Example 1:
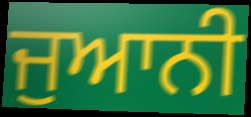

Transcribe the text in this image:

ਜੁਆਨੀ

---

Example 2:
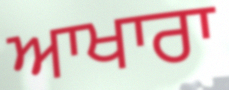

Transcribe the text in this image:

ਆਖਾਰਾ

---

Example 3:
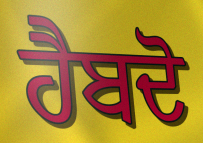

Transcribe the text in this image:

ਹੈਬਦੋ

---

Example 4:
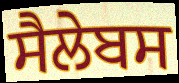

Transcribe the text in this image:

ਸੈਲੇਬਸ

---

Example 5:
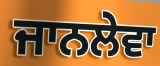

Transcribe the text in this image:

ਜਾਨਲੇਵਾ